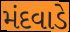
મંદવાડે